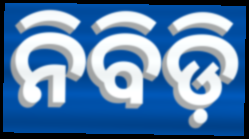
ନିବିଡ଼ି